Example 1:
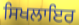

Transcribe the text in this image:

ਸਿਖਲਾਇਰ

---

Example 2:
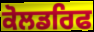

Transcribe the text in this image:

ਕੋਲਡਰਿਫ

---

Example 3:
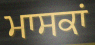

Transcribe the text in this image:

ਮਾਸਕਾਂ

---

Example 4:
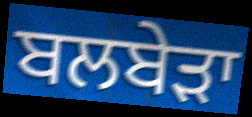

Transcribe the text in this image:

ਬਲਬੇਡ਼ਾ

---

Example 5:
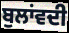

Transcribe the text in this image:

ਬੁਲਾਂਵਦੀ